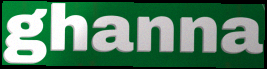
ghanna